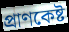
প্রাণকেষ্ট